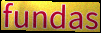
fundas